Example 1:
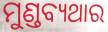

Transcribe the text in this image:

ମୁଣ୍ଡବ୍ୟଥାର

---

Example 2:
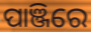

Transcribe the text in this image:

ପାଞ୍ଜିରେ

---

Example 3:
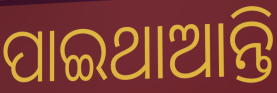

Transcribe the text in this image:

ପାଇଥାଆନ୍ତି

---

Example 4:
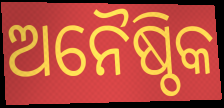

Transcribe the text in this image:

ଅନୈଷ୍ଠିକ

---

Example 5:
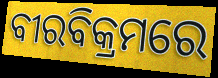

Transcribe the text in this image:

ବୀରବିକ୍ରମରେ